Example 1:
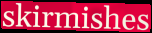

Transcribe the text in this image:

skirmishes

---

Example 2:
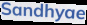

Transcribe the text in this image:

Sandhyae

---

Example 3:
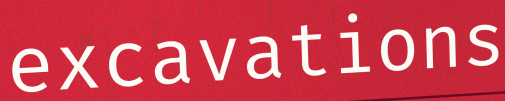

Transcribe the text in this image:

excavations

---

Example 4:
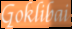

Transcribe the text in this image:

Goklibai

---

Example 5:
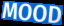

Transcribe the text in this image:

MOOD